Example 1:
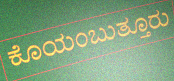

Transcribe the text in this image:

ಕೊಯಂಬುತ್ತೂರು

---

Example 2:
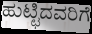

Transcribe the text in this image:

ಹುಟ್ಟಿದವರಿಗೆ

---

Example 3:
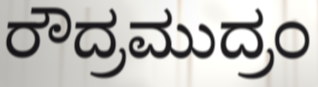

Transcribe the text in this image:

ರೌದ್ರಮುದ್ರಂ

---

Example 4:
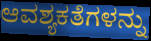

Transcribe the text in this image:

ಆವಶ್ಯಕತೆಗಳನ್ನು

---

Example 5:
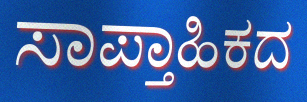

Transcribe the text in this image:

ಸಾಪ್ತಾಹಿಕದ